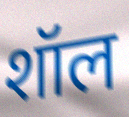
शॉल